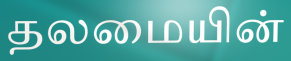
தலமையின்